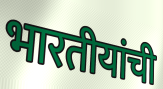
भारतीयांची